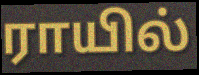
ராயில்